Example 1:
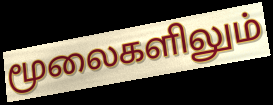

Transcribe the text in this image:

மூலைகளிலும்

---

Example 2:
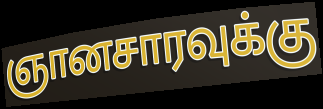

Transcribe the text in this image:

ஞானசாரவுக்கு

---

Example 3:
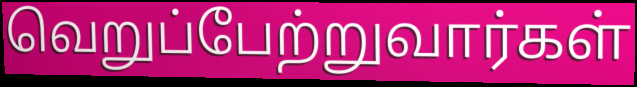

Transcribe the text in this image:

வெறுப்பேற்றுவார்கள்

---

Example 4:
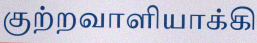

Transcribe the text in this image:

குற்றவாளியாக்கி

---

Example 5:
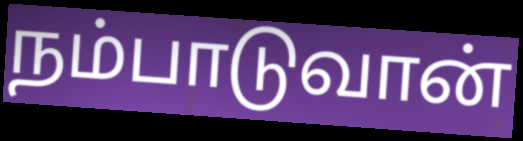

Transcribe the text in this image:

நம்பாடுவான்